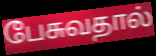
பேசுவதால்